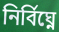
নিৰ্বিঘ্নে